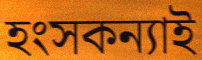
হংসকন্যাই